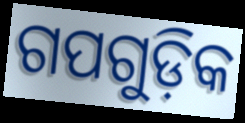
ଗପଗୁଡ଼ିକ